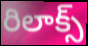
రిలాక్స్